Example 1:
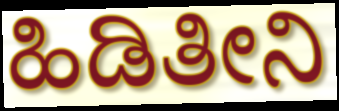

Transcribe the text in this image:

ಹಿಡಿತೀನಿ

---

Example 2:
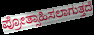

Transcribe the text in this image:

ಪ್ರೋತ್ಸಾಹಿಸಲಾಗುತ್ತದೆ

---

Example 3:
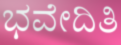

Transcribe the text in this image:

ಭವೇದಿತಿ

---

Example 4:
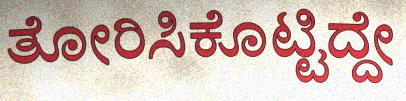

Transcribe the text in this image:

ತೋರಿಸಿಕೊಟ್ಟಿದ್ದೇ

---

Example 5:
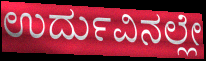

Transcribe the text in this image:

ಉರ್ದುವಿನಲ್ಲೇ